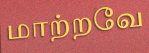
மாற்றவே